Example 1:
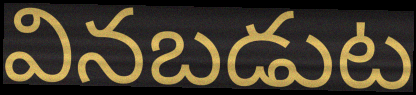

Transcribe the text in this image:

వినబడుట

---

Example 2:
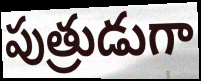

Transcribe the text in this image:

పుత్రుడుగా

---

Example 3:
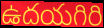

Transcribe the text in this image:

ఉదయగిరి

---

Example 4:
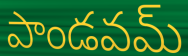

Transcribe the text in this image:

పాండవమ్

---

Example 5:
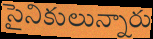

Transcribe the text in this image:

సైనికులున్నారు